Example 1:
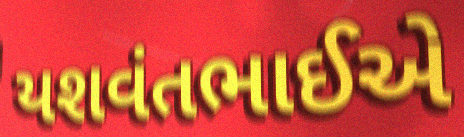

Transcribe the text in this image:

યશવંતભાઈએ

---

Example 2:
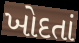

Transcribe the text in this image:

ખોદતાં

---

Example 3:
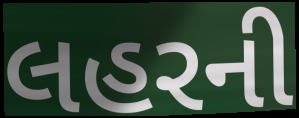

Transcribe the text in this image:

લહરની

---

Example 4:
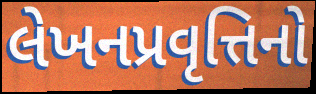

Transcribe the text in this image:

લેખનપ્રવૃત્તિનો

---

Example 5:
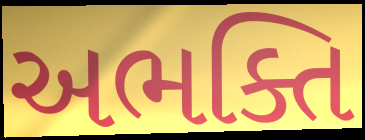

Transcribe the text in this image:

અભક્તિ